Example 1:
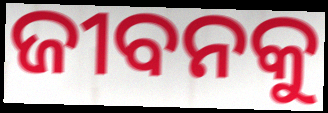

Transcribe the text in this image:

ଜୀବନକୁ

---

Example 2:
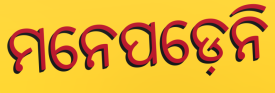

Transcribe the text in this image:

ମନେପଡ଼େନି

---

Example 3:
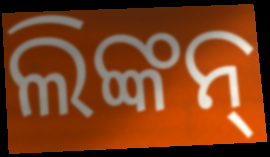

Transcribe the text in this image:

ଲିଙ୍କନ୍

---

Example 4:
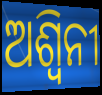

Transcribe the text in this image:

ଅଶ୍ୱିନୀ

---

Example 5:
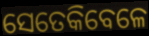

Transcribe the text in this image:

ସେତେକିବେଳେ